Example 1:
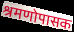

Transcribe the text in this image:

श्रमणोपासक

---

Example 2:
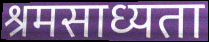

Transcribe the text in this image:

श्रमसाध्यता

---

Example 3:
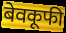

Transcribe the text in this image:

बेवकूफी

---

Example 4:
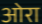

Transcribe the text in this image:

ओरा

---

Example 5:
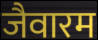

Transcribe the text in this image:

जैवारम